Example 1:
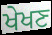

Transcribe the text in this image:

ਖੇਖਣ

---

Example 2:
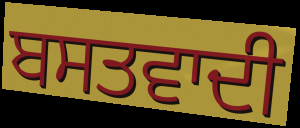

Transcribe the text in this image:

ਬਸਤਵਾਦੀ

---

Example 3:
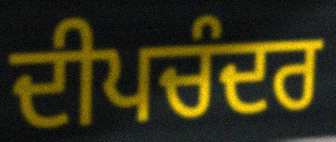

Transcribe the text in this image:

ਦੀਪਚੰਦਰ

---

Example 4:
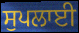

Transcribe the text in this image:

ਸੁਪਲਾਈ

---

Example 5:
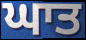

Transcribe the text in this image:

ਘਾਤ